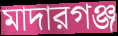
মাদারগঞ্জ